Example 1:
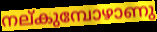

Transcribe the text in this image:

നല്കുമ്പോഴാണു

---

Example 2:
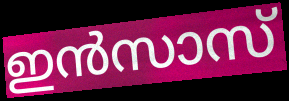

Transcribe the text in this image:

ഇൻസാസ്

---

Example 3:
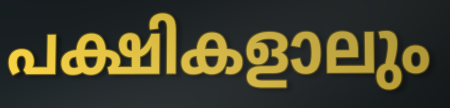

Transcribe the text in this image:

പക്ഷികളാലും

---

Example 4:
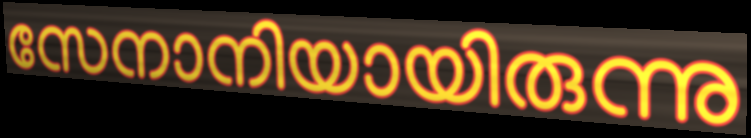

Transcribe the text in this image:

സേനാനിയായിരുന്നു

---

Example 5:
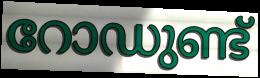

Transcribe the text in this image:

റോഡുണ്ട്